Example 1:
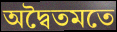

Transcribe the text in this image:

অদ্বৈতমতে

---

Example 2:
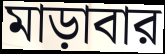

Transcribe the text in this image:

মাড়াবার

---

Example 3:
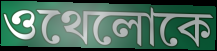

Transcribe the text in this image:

ওথেলোকে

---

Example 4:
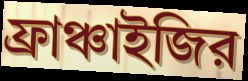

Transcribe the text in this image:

ফ্রাঞ্চাইজির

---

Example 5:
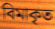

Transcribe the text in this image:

বিমাকৃত